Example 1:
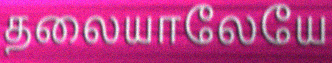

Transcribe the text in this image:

தலையாலேயே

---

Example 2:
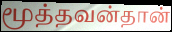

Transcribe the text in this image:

மூத்தவன்தான்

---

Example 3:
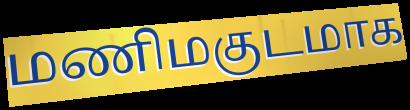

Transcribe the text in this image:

மணிமகுடமாக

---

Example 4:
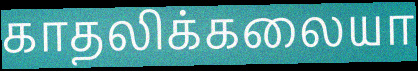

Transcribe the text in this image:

காதலிக்கலையா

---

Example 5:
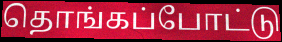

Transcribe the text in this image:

தொங்கப்போட்டு